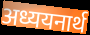
अध्ययनार्थ